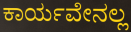
ಕಾರ್ಯವೇನಲ್ಲ